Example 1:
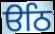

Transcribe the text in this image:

ੳਠਿ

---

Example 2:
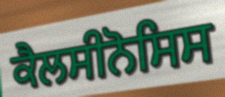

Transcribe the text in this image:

ਕੈਲਸੀਨੋਸਿਸ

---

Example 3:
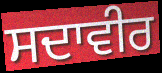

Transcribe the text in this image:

ਸਦਾਵੀਰ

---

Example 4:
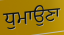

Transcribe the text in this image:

ਧੁਮਾਉਣਾ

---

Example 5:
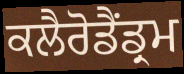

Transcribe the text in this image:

ਕਲੈਰੋਡੈਂਡ੍ਰਮ